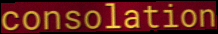
consolation